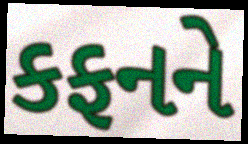
કફનને